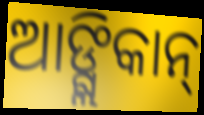
ଆଙ୍ଗ୍ଲିକାନ୍